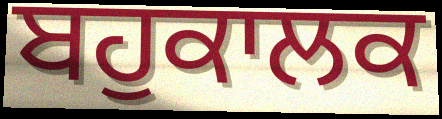
ਬਹੁਕਾਲਕ